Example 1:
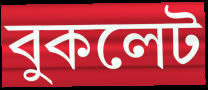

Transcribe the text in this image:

বুকলেট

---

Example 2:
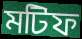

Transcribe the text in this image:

মটিফ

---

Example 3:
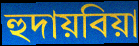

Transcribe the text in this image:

হুদায়বিয়া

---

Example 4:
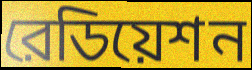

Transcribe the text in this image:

রেডিয়েশন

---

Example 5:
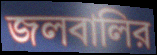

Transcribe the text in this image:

জলবালির